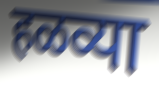
हळव्या